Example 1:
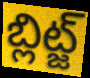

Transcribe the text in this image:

బ్లిట్జ్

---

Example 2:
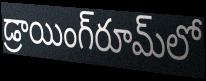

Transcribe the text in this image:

డ్రాయింగ్‌రూమ్‌లో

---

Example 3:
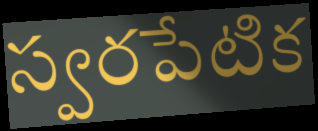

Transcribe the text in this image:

స్వరపేటిక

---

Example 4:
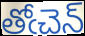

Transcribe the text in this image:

తోఁచెన్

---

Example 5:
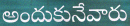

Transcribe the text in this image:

అందుకునేవారు